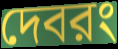
দেবরং